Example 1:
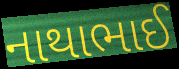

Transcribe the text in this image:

નાથાભાઈ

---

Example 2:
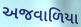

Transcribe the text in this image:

અજવાળિયા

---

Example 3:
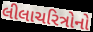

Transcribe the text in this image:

લીલાચરિત્રોનો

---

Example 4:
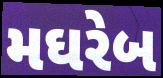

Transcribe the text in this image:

મઘરેબ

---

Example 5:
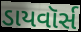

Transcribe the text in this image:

ડાયવૉર્સ